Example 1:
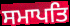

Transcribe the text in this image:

ਸਮਾਪਤਿ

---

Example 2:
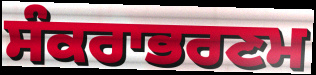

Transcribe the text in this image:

ਸੰਕਰਾਭਰਣਮ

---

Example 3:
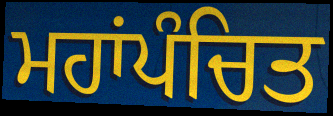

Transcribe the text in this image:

ਮਹਾਂਪੰਚਿਤ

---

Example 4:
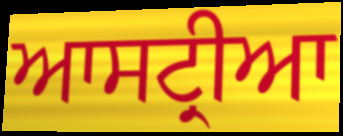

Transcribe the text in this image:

ਆਸਟ੍ਰੀਆ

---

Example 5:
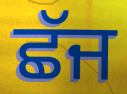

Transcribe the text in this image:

ਛੱਜ